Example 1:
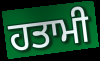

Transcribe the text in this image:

ਹਤਾਮੀ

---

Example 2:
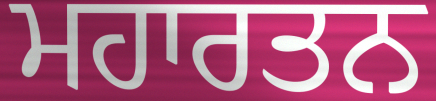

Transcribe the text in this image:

ਮਹਾਰਤਨ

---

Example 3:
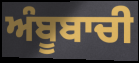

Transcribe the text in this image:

ਅੰਬੂਬਾਚੀ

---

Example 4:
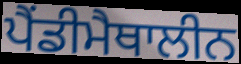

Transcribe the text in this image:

ਪੈਂਡੀਮੈਥਾਲੀਨ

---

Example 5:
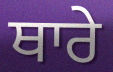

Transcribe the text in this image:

ਥਾਰੇ